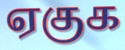
ஏகுக